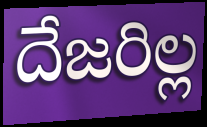
దేజరిల్ల